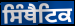
ਸਿੰਥੈਟਿਕ